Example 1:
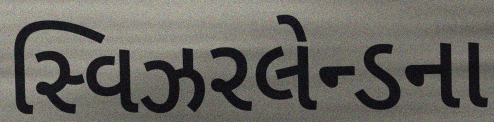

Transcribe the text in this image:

સ્વિઝરલેન્ડના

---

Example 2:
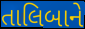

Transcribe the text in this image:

તાલિબાને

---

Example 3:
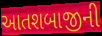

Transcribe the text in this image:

આતશબાજીની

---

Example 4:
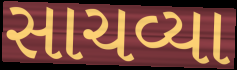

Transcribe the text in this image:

સાચવ્યા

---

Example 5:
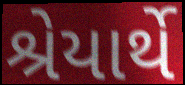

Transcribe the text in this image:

શ્રેયાર્થે